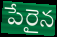
పేరైన